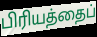
பிரியத்தைப்